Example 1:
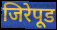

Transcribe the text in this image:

जिरेपूड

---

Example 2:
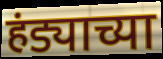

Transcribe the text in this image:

हंड्याच्या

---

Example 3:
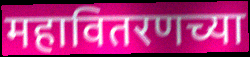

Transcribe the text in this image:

महावितरणच्या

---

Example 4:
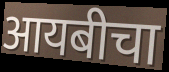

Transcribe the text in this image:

आयबीचा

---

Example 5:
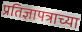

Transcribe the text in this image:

प्रतिज्ञापत्राच्या